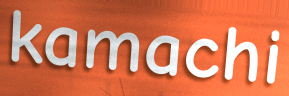
kamachi